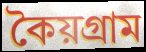
কৈয়গ্রাম